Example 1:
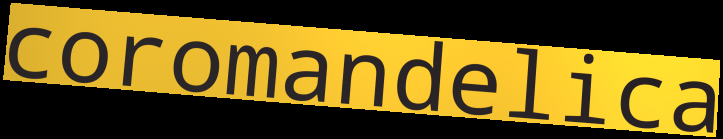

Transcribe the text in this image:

coromandelica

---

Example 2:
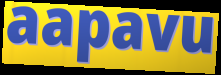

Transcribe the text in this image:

aapavu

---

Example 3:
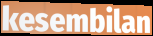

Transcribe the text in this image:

kesembilan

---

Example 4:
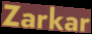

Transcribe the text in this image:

Zarkar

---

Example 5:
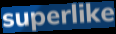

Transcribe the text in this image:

superlike